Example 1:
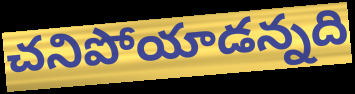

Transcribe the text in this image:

చనిపోయాడన్నది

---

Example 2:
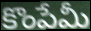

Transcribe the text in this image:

కొంపేమీ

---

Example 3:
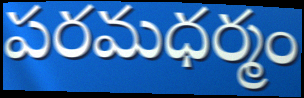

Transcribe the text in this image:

పరమధర్మం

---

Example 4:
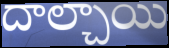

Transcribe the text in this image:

దాల్చాయి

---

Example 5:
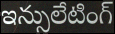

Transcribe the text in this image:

ఇన్సులేటింగ్